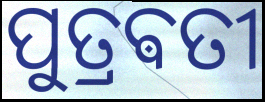
ପୁତ୍ରଵତୀ